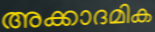
അക്കാദമിക